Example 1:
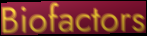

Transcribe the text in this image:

Biofactors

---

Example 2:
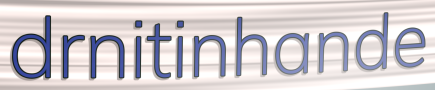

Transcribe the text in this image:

drnitinhande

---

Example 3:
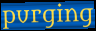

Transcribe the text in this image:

purging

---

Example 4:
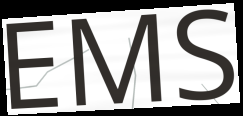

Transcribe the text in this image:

EMS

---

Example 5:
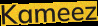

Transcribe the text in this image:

Kameez